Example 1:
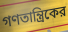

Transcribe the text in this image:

গণতান্ত্রিকের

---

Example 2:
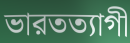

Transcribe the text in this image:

ভারতত্যাগী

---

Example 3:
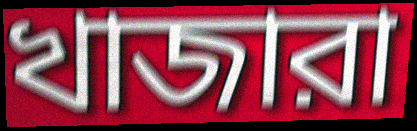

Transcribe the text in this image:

খাজারা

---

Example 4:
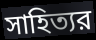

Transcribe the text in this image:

সাহিত্যর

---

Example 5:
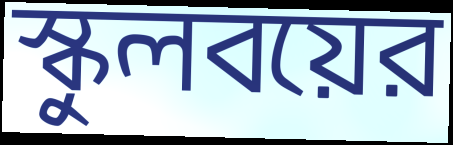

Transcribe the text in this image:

স্কুলবয়ের